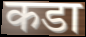
कडा